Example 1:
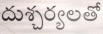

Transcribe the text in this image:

దుశ్చర్యలతో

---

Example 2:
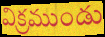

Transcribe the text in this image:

విక్రముండు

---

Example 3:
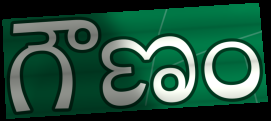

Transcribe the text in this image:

గౌణం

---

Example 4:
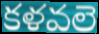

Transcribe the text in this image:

కళవలె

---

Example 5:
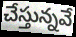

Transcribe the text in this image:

చేస్తున్నవే